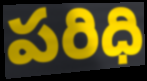
పరిధి